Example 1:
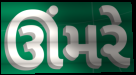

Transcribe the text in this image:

ઊંમરે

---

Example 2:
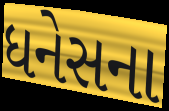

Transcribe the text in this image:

ધનેસના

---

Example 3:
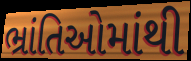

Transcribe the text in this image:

ભ્રાંતિઓમાંથી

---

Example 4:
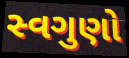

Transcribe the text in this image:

સ્વગુણો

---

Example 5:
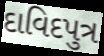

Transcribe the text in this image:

દાવિદપુત્ર